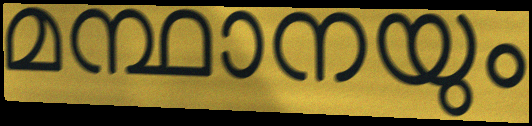
മന്ഥാനയും